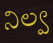
నిల్వ